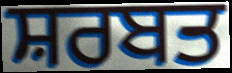
ਸ਼ਰਬਤ